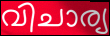
വിചാര്യ